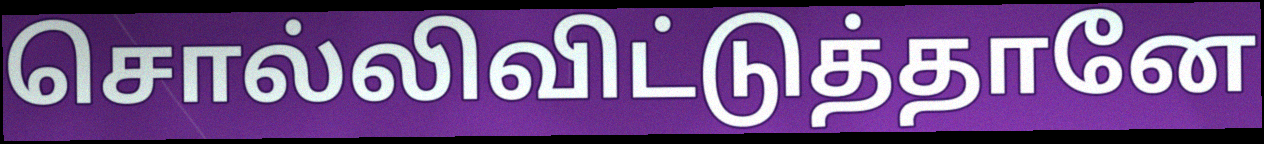
சொல்லிவிட்டுத்தானே